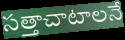
సత్తాచాటాలనే